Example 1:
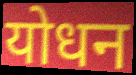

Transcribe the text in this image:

योधन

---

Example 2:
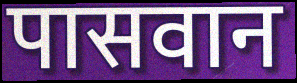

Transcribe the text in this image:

पासवान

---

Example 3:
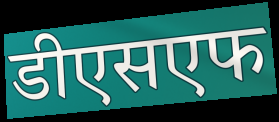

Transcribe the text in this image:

डीएसएफ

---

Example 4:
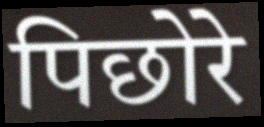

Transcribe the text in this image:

पिछोरे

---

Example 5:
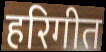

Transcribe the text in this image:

हरिगीत